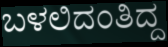
ಬಳಲಿದಂತಿದ್ದ